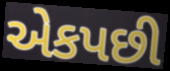
એકપછી